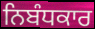
ਨਿਬੰਧਕਾਰ